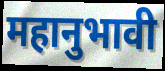
महानुभावी